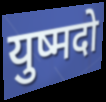
युष्मदो